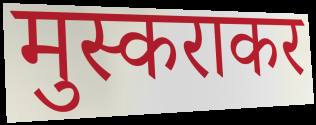
मुस्कराकर